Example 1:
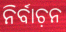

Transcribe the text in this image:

ନିର୍ବାଚ଼ନ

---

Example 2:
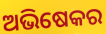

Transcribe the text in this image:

ଅଭିଷେକର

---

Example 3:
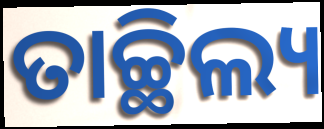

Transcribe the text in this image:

ତାଚ୍ଛିଲ୍ୟ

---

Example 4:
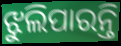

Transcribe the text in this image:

ଝୁଲିପାରନ୍ତି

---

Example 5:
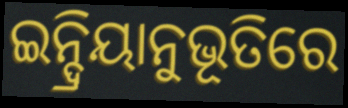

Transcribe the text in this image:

ଇନ୍ଦ୍ରିୟାନୁଭୂତିରେ